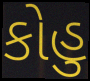
કોહુ